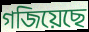
গজিয়েছে